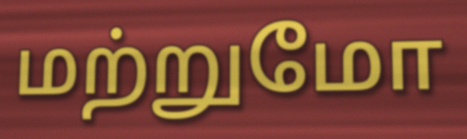
மற்றுமோ